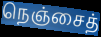
நெஞ்சைத்